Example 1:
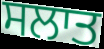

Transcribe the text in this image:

ਸਲਾਤ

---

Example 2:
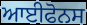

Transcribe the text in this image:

ਆਈਫੋਨਸ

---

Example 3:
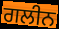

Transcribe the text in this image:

ਗਲੀਨ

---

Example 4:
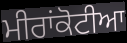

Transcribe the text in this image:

ਮੀਰਾਂਕੋਟੀਆ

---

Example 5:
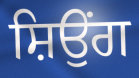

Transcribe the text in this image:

ਸ਼ਿਉਂਗ